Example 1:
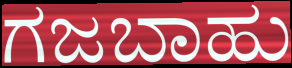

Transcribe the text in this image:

ಗಜಬಾಹು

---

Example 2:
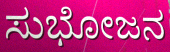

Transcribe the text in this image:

ಸುಭೋಜನ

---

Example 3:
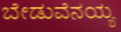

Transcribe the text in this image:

ಬೇಡುವೆನಯ್ಯ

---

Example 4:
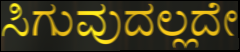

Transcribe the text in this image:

ಸಿಗುವುದಲ್ಲದೇ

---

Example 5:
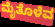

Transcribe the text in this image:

ಮೈತೊಳೆವ